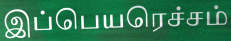
இப்பெயரெச்சம்